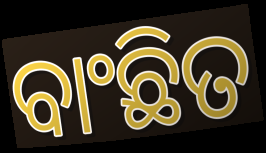
ବାଂଛିତ